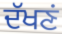
ਦੱਖਣਂ